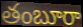
తంబూరా